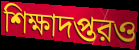
শিক্ষাদপ্তরও